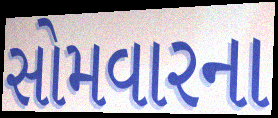
સોમવારના